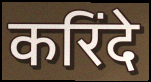
करिंदे